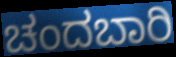
ಚಂದಬಾರಿ